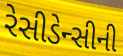
રેસીડેન્સીની